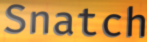
Snatch